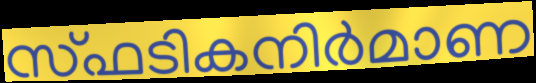
സ്ഫടികനിർമാണ